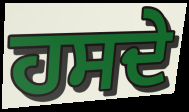
ਹਸਦੇ